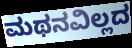
ಮಥನವಿಲ್ಲದ